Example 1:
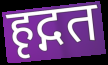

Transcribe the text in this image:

हृद्गत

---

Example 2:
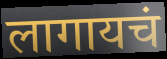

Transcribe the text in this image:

लागायचं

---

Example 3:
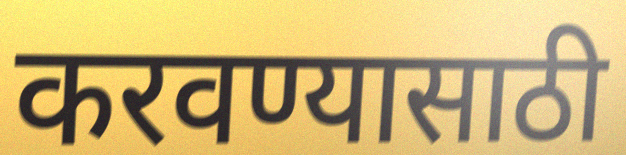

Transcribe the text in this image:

करवण्यासाठी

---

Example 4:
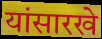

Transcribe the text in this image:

यांसारखे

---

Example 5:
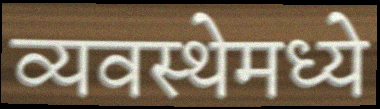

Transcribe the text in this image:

व्यवस्थेमध्ये